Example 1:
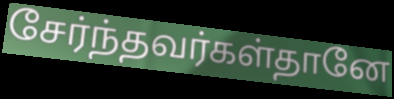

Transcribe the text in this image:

சேர்ந்தவர்கள்தானே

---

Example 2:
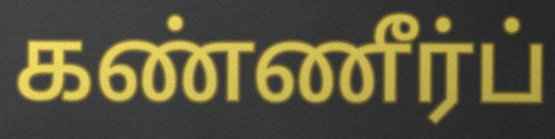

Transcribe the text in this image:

கண்ணீர்ப்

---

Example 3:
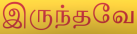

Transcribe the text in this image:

இருந்தவே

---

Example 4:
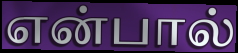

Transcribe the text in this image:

என்பால்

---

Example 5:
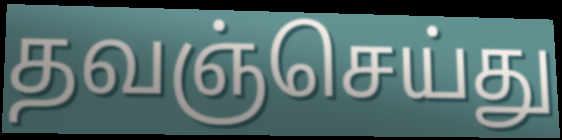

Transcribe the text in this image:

தவஞ்செய்து